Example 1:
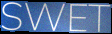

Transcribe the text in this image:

SWET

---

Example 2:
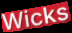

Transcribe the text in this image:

Wicks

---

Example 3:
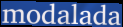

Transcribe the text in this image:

modalada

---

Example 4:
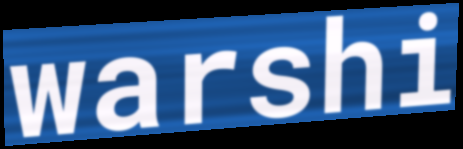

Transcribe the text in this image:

warshi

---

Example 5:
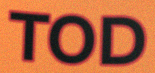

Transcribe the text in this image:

TOD